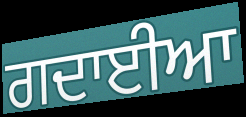
ਗਦਾਈਆ